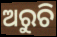
ଅରୁଚି